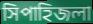
সিপাহিজলা